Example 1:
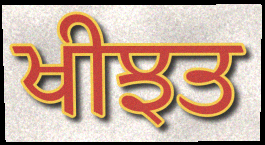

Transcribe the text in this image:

ਖੀਝਤ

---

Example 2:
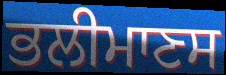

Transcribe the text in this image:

ਭਲੀਮਾਣਸ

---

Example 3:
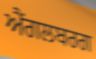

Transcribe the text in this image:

ਐਂਗਲਬਰਗ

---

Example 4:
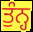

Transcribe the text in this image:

ਤੁੰਨ੍ਹ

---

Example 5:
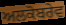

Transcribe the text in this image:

ਅਲਕੋਬਰੇਵ